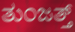
ತುಂಜತ್ತ್